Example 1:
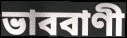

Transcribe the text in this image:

ভাববাণী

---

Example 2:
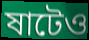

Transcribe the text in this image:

ষাটেও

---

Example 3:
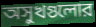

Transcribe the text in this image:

অসুখগুলোর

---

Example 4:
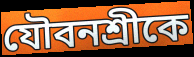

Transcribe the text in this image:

যৌবনশ্রীকে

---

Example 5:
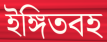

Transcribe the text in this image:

ইঙ্গিতবহ